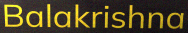
Balakrishna